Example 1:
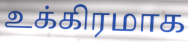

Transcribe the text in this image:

உக்கிரமாக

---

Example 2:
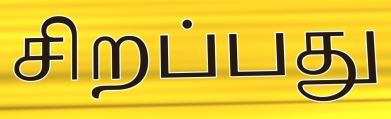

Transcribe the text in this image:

சிறப்பது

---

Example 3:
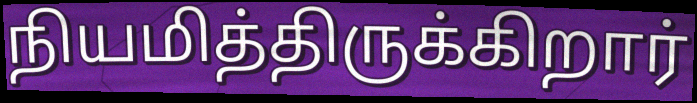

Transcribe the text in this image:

நியமித்திருக்கிறார்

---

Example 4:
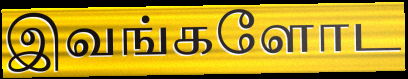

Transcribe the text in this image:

இவங்களோட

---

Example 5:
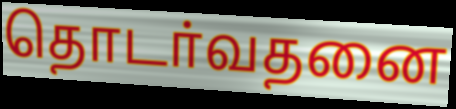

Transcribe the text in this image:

தொடர்வதனை